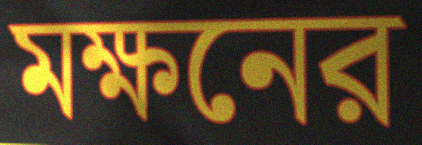
মক্ষনের